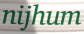
nijhum